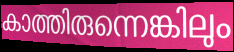
കാത്തിരുന്നെങ്കിലും